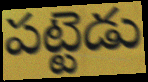
పట్టెడు